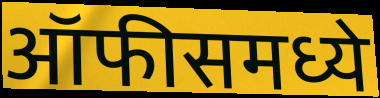
ऑफीसमध्ये